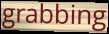
grabbing